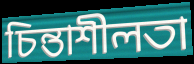
চিন্তাশীলতা